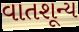
વાતશૂન્ય